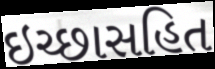
ઇચ્છાસહિત